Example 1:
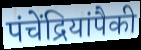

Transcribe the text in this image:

पंचेंद्रियांपैकी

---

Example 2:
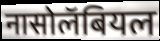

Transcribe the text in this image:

नासोलॅबियल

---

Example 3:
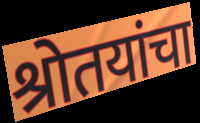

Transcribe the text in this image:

श्रोतयांचा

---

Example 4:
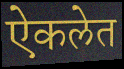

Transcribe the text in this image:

ऐकलेत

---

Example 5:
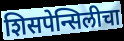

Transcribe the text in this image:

शिसपेन्सिलीचा